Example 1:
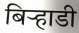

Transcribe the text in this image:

बिर्‍हाडी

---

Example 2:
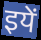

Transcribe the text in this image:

इयें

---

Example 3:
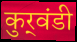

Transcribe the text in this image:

कुर्वंडी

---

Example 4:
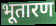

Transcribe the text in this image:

भूतारण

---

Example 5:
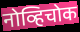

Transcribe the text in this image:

नोव्हिचोक